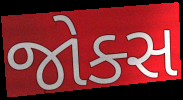
જોક્સ